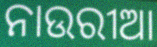
ନାଉରୀଆ